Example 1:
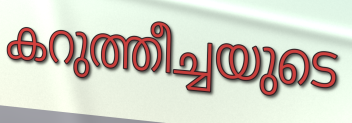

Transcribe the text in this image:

കറുത്തീച്ചയുടെ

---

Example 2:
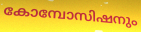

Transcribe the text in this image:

കോമ്പോസിഷനും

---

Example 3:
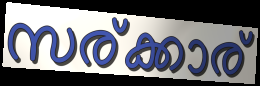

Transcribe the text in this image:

സര്ക്കാര്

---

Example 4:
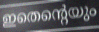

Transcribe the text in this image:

ഇതെന്റെയും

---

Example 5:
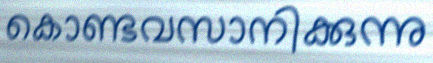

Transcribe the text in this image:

കൊണ്ടവസാനിക്കുന്നു